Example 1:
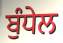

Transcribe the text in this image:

ਬੁੰਧੇਲ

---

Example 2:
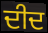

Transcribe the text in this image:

ਦੀਦ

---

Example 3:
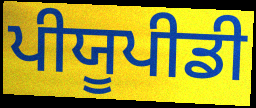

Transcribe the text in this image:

ਪੀਯੂਪੀਡੀ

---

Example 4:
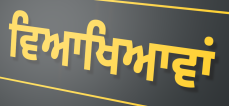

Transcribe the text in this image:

ਵਿਆਖਿਆਵਾਂ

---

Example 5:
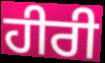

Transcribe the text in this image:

ਹੀਰੀ